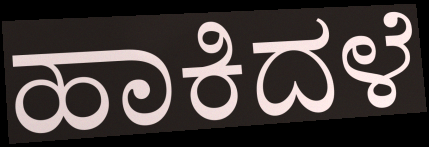
ಹಾಕಿದಳೆ